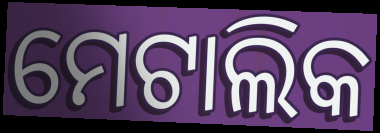
ମେଟାଲିକ